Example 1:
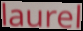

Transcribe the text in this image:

laurel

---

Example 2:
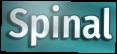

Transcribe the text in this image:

Spinal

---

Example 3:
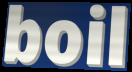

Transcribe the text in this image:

boil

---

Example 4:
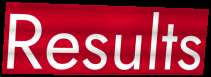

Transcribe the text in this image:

Results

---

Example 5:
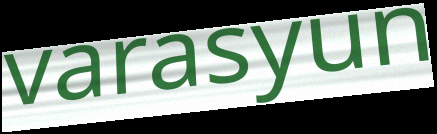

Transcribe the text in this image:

varasyun